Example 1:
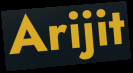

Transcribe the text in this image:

Arijit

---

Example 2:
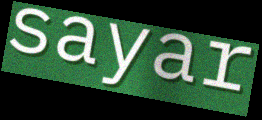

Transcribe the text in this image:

sayar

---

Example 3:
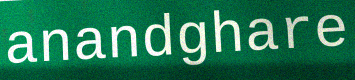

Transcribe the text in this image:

anandghare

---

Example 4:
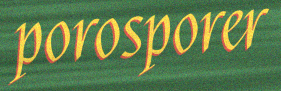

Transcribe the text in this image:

porosporer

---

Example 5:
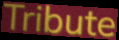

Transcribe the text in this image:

Tribute